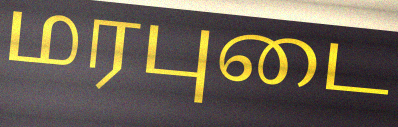
மரபுடை